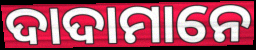
ଦାଦାମାନେ